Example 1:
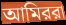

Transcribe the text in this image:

আমিররা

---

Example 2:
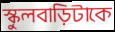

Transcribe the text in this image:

স্কুলবাড়িটাকে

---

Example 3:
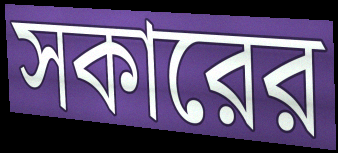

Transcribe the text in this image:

সকারের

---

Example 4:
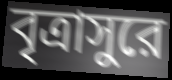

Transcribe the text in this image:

বৃত্রাসুরে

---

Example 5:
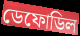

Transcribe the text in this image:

ডেফোডিল